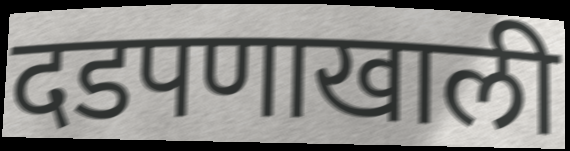
दडपणाखाली